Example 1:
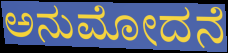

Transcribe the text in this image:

ಅನುಮೋದನೆ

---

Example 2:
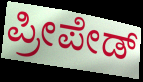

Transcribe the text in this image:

ಪ್ರೀಪೇಡ್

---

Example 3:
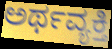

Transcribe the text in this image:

ಅರ್ಥವ್ಯಕ್ತಿ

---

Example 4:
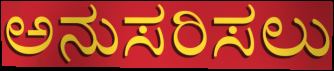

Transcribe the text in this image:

ಅನುಸರಿಸಲು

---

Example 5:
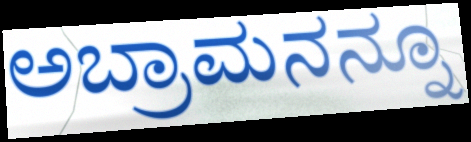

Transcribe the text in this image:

ಅಬ್ರಾಮನನ್ನೂ